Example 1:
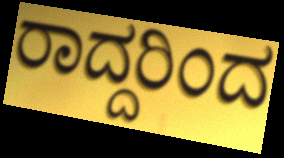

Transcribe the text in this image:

ರಾದ್ದರಿಂದ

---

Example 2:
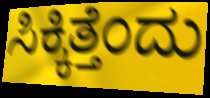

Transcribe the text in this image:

ಸಿಕ್ಕಿತ್ತೆಂದು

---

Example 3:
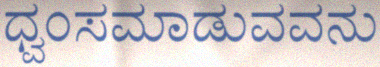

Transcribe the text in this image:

ಧ್ವಂಸಮಾಡುವವನು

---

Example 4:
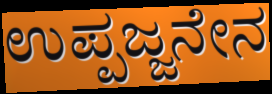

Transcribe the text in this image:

ಉಪ್ಪಜ್ಜನೇನ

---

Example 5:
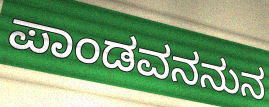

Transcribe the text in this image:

ಪಾಂಡವನನುನ